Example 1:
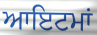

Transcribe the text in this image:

ਆਇਟਮਾਂ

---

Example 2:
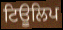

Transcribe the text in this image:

ਟਿਊਲਿਪ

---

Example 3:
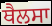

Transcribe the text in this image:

ਥੈਲਸਾ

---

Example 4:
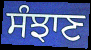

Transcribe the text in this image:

ਸੰਝਾਣ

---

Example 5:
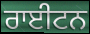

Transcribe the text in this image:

ਰਾਈਟਨ